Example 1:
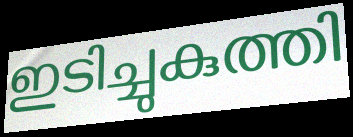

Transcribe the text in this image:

ഇടിച്ചുകുത്തി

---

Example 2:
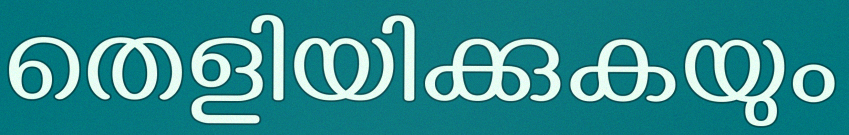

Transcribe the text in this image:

തെളിയിക്കുകയും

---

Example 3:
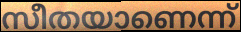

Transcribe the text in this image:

സീതയാണെന്ന്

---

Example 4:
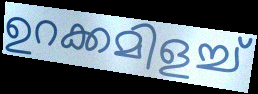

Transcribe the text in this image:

ഉറക്കമിളച്ച്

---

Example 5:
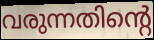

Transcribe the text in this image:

വരുന്നതിന്റെ